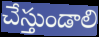
చేస్తుండాలి